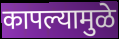
कापल्यामुळे